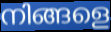
നിങ്ങളെ